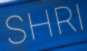
SHRI